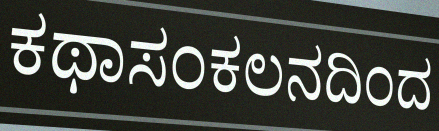
ಕಥಾಸಂಕಲನದಿಂದ